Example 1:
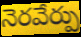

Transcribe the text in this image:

నెరవేర్పు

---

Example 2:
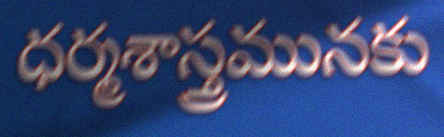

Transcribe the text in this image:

ధర్మశాస్త్రమునకు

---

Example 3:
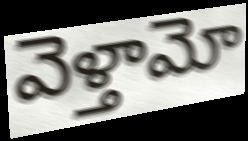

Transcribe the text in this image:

వెళ్తామో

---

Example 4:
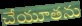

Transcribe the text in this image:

చేయూతను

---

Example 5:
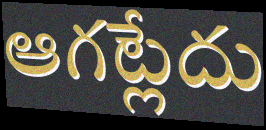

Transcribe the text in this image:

ఆగట్లేదు